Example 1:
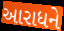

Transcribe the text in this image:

આરાધને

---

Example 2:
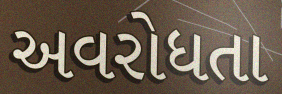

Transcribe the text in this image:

અવરોધતા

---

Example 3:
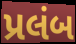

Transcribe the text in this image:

પ્રલંબ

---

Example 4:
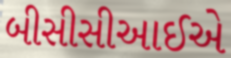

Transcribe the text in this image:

બીસીસીઆઈએ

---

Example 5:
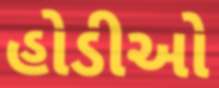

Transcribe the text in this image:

હોડીઓ